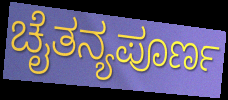
ಚೈತನ್ಯಪೂರ್ಣ